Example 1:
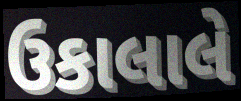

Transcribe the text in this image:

ઉકાલાલે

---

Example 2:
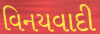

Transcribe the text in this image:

વિનયવાદી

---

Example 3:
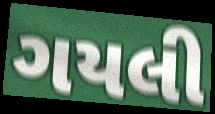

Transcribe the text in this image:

ગયલી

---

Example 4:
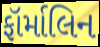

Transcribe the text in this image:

ફૉર્માલિન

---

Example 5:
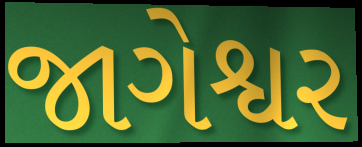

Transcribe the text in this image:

જાગેશ્વર